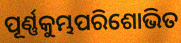
ପୂର୍ଣ୍ଣକୁମ୍ଭପରିଶୋଭିତ